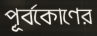
পূর্বকোণের